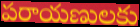
పరాయణులకు